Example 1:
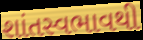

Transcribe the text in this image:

શાંતસ્વભાવથી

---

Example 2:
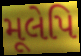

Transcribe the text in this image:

મૂલેપિ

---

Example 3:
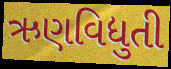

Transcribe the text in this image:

ઋણવિદ્યુતી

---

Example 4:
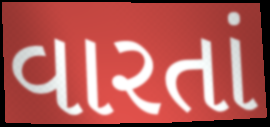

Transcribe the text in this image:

વારતાં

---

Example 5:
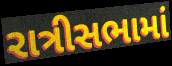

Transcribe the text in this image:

રાત્રીસભામાં